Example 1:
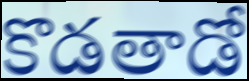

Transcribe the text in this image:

కొడతాడో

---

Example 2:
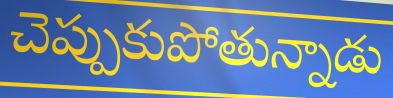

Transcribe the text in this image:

చెప్పుకుపోతున్నాడు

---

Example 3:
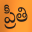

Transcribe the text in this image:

ప్రీతి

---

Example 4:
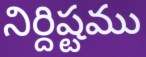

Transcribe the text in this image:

నిర్దిష్టము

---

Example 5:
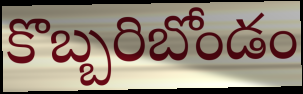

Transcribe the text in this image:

కొబ్బరిబోండం